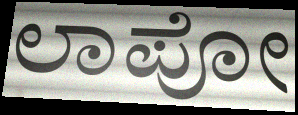
ಲಾಪೋ